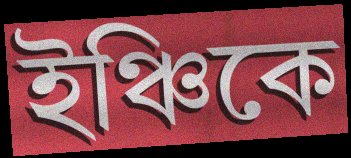
ইঞ্চিকে